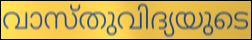
വാസ്തുവിദ്യയുടെ